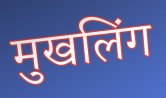
मुखलिंग